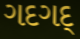
ગદગદ્